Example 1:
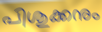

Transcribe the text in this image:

പിശുക്കനും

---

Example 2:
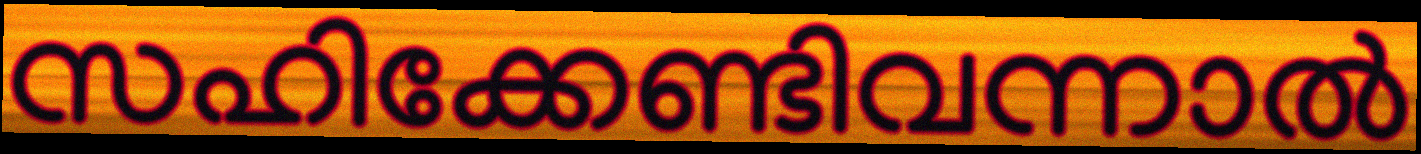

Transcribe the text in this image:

സഹിക്കേണ്ടിവന്നാൽ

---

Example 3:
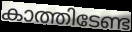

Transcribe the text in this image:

കാത്തിടേണ്ട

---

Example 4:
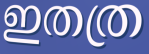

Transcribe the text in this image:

ഇതത്ര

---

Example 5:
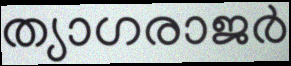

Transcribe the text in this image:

ത്യാഗരാജർ